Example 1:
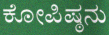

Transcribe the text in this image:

ಕೋಪಿಷ್ಠನು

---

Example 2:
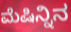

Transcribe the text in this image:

ಮೆಷಿನ್ನಿನ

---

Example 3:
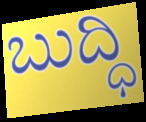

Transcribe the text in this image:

ಬುದ್ಧಿ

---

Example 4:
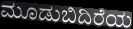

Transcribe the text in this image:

ಮೂಡುಬಿದಿರೆಯ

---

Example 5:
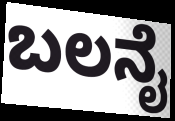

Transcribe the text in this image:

ಬಲನೈ